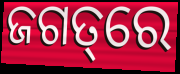
ଜଗତ୍‌ରେ